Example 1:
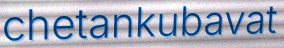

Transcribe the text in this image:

chetankubavat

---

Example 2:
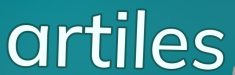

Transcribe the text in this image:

artiles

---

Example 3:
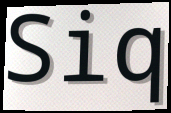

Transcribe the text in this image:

Siq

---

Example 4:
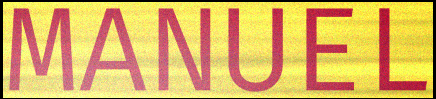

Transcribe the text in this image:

MANUEL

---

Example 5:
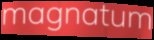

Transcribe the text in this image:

magnatum